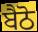
ਬੈਠੋ